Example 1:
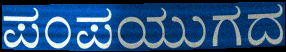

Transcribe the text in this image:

ಪಂಪಯುಗದ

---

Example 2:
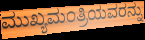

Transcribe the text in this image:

ಮುಖ್ಯಮಂತ್ರಿಯವರನ್ನು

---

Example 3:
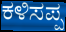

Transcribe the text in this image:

ಕಳಿಸಪ್ಪ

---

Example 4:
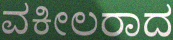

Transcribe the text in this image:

ವಕೀಲರಾದ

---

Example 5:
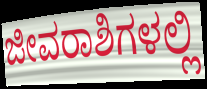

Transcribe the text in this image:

ಜೀವರಾಶಿಗಳಲ್ಲಿ